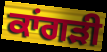
ਕਾਂਗੜੀ